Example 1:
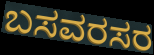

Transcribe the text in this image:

ಬಸವರಸರ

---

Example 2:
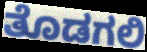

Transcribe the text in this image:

ತೊಡಗಲಿ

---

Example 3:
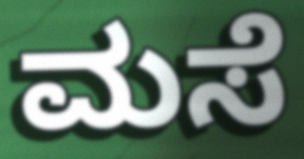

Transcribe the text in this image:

ಮಸೆ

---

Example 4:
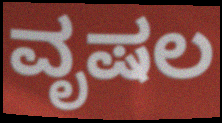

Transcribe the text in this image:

ವೃಷಲ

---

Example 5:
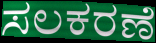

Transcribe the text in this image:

ಸಲಕರಣೆ